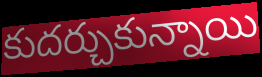
కుదర్చుకున్నాయి